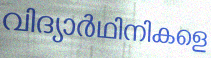
വിദ്യാർഥിനികളെ